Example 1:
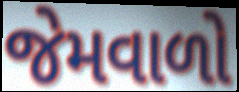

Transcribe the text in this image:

જેમવાળો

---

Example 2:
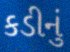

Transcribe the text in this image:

કડીનું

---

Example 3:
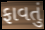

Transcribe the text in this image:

ફાવતું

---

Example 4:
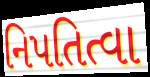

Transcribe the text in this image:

નિપતિત્વા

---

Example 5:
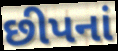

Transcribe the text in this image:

છીપનાં